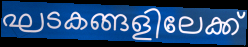
ഘടകങ്ങളിലേക്ക്